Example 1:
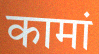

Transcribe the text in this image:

कामां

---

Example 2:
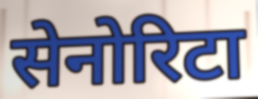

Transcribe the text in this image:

सेनोरिटा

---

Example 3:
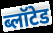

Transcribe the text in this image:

ब्लॉटेड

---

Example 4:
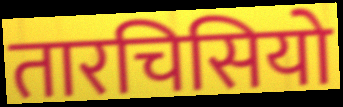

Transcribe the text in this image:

तारचिसियो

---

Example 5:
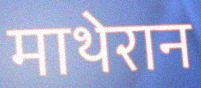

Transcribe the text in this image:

माथेरान